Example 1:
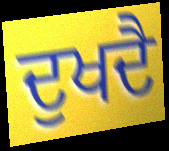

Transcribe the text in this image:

ਦੁਖਦੈ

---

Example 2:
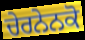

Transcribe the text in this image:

ਚੇਰਨੇਨਕੋ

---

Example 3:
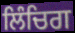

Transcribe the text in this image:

ਲਿੰਚਿਗ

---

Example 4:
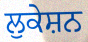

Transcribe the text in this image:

ਲੁਕੇਸ਼ਨ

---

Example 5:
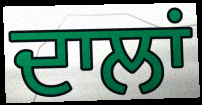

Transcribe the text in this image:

ਦਾਲਾਂ